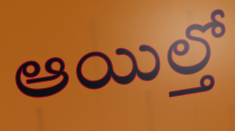
ఆయిల్తో